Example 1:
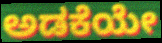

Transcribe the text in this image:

ಅಡಕೆಯೇ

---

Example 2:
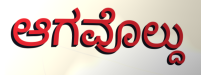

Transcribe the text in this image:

ಆಗವೊಲ್ದು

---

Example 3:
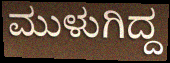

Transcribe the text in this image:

ಮುಳುಗಿದ್ದ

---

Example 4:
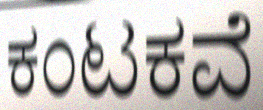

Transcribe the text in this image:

ಕಂಟಕವೆ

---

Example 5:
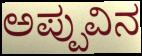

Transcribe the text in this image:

ಅಪ್ಪುವಿನ